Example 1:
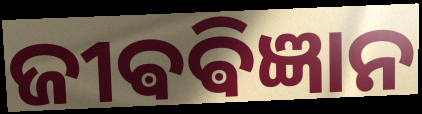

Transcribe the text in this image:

ଜୀଵଵିଜ୍ଞାନ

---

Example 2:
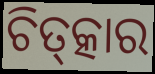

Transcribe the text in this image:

ଚିତ୍‌ତ୍କାର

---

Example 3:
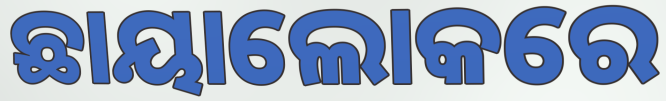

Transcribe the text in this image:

ଛାୟାଲୋକରେ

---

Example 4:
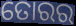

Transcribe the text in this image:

ତୋରର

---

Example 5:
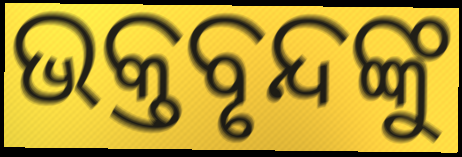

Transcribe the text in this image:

ଭକ୍ତବୃନ୍ଦଙ୍କୁ